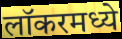
लॉकरमध्ये